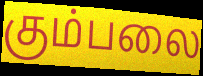
கும்பலை